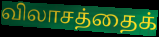
விலாசத்தைக்